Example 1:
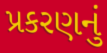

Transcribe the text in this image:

પ્રકરણનું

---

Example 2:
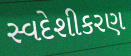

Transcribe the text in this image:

સ્વદેશીકરણ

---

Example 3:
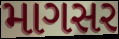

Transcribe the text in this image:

માગસર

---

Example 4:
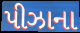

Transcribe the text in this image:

પીઝાના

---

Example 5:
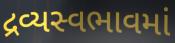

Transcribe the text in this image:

દ્રવ્યસ્વભાવમાં